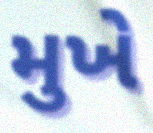
મુખે